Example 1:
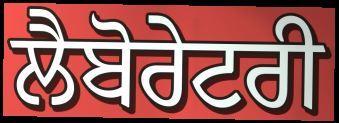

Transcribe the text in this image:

ਲੈਬੋਰੇਟਰੀ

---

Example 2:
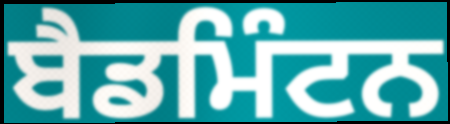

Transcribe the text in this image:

ਬੈਡਮਿੰਟਨ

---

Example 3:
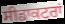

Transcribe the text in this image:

ਸੀਡਾਕਟਰਾਂ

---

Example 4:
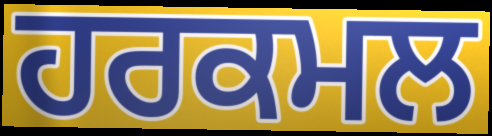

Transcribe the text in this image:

ਹਰਕਮਲ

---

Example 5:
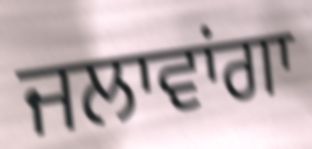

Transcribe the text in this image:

ਜਲਾਵਾਂਗਾ